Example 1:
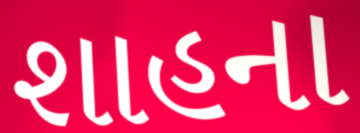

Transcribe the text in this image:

શાહના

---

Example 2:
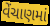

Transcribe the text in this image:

વેંચાણમાં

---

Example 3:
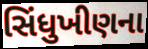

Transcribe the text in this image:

સિંધુખીણના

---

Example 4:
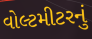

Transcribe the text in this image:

વોલ્ટમીટરનું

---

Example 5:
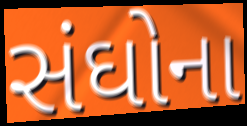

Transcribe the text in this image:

સંઘોના